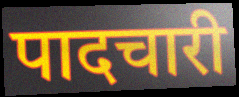
पादचारी